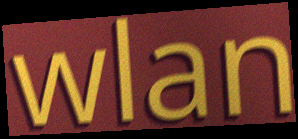
wlan